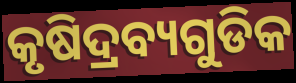
କୃଷିଦ୍ରବ୍ୟଗୁଡିକ